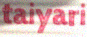
taiyari